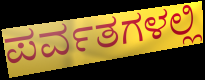
ಪರ್ವತಗಳಲ್ಲಿ